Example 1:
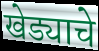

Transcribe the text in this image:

खेड्याचे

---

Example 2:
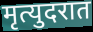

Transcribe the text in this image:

मृत्युदरात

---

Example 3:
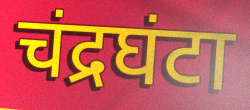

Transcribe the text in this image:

चंद्रघंटा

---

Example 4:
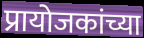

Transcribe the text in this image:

प्रायोजकांच्या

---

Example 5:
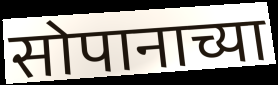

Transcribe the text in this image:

सोपानाच्या